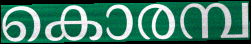
കൊരമ്പ